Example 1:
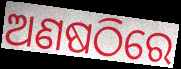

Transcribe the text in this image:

ଅଣଷଠିରେ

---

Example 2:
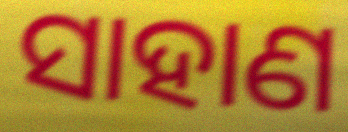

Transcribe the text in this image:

ସାହାଣ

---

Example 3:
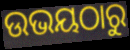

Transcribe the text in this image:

ଉଭୟଠାରୁ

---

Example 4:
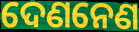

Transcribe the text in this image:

ଦେଣନେଣ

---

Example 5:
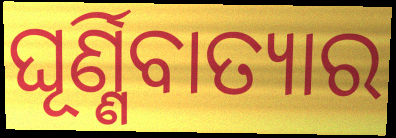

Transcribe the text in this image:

ଘୂର୍ଣ୍ଣିବାତ୍ୟାର